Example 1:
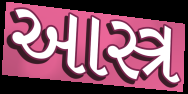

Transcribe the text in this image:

આસ્ત્ર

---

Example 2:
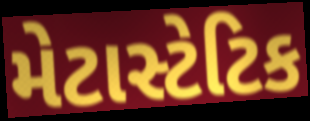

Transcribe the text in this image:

મેટાસ્ટેટિક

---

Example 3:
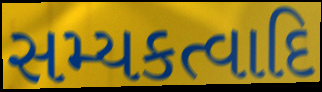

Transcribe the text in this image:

સમ્યકત્વાદિ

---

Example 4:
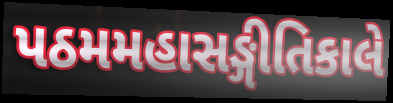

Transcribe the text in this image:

પઠમમહાસઙ્ગીતિકાલે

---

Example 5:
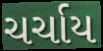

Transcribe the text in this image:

ચર્ચાય